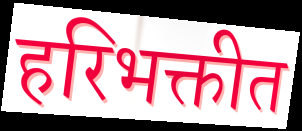
हरिभक्तीत